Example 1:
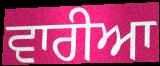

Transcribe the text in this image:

ਵਾਰੀਆ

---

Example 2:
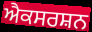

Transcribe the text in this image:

ਐਕਸਰਸ਼ਨ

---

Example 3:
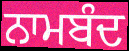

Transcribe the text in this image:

ਨਾਮਬੰਦ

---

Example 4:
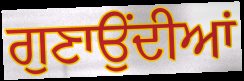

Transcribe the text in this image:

ਗੁਣਾਉਂਦੀਆਂ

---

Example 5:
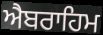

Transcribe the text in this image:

ਐਬਰਾਹਿਮ